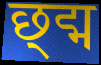
छ्द्म